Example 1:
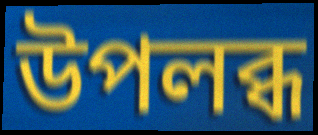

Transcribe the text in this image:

উপলব্ধ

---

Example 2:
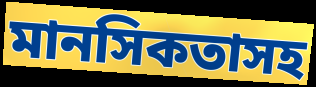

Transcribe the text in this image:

মানসিকতাসহ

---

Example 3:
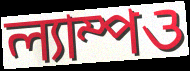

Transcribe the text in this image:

ল্যাম্পও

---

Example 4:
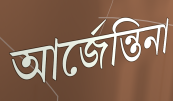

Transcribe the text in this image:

আর্জেন্তিনা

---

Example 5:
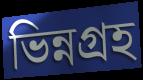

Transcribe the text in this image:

ভিন্নগ্রহ